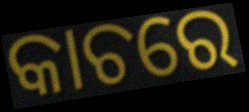
କାଚରେ